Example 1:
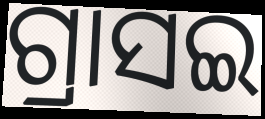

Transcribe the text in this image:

ଗ୍ରାସଇ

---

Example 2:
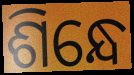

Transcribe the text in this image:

ଶିନ୍ଧେ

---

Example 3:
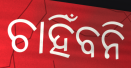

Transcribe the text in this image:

ଚାହିଁବନି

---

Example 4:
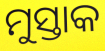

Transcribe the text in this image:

ମୁସ୍ତାକ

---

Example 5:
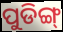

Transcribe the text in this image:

ପୁଡିଙ୍ଗ୍